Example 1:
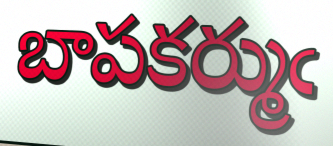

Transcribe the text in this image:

బాపకర్ముఁ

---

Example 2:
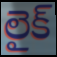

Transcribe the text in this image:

లైక్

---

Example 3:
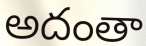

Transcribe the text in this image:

అదంతా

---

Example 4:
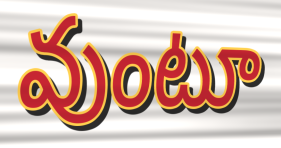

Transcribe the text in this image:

వుంటూ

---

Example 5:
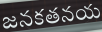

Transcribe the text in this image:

జనకతనయ